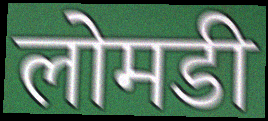
लोमडी